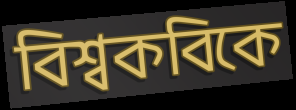
বিশ্বকবিকে